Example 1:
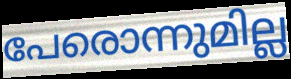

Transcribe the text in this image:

പേരൊന്നുമില്ല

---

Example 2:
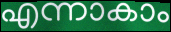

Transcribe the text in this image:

എന്നാകാം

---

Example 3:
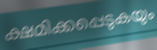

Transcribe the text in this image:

ക്ഷമിക്കപ്പെടുകയും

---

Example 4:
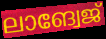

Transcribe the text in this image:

ലാങ്വേജ്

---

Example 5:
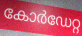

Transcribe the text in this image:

കോർഡേറ്റ